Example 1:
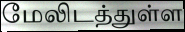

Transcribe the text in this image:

மேலிடத்துள்ள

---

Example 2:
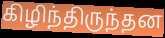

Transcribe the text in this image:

கிழிந்திருந்தன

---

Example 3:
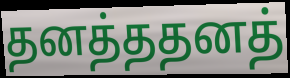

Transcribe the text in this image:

தனத்ததனத்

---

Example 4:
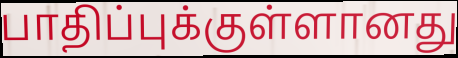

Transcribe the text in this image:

பாதிப்புக்குள்ளானது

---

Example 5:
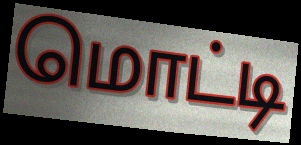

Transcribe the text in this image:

மொட்டி